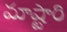
మాష్టారి